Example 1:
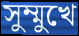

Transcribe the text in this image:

সুম্মুখে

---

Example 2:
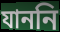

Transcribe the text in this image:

যাননি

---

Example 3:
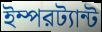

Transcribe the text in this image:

ইম্পরট্যান্ট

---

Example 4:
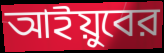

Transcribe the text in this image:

আইয়ুবের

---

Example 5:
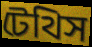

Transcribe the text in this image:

টেথিস